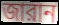
জারান